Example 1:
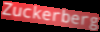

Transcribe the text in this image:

Zuckerberg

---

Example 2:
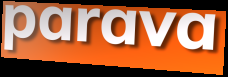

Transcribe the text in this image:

parava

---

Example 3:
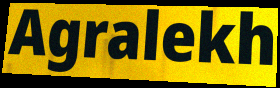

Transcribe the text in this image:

Agralekh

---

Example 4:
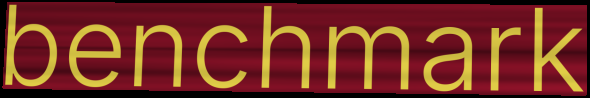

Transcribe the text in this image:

benchmark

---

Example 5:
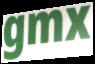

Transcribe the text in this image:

gmx